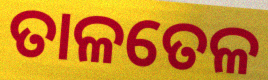
ତାଳତେଳ